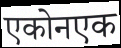
एकोनएक